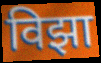
विझा